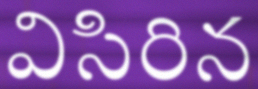
విసిరిన